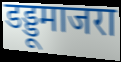
डड्डूमाजरा